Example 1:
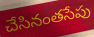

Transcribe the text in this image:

చేసినంతసేపు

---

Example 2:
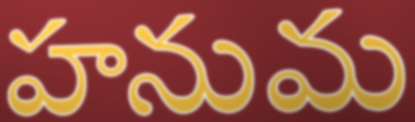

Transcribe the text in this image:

హనుమ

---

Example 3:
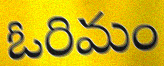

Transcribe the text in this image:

ఓరిమం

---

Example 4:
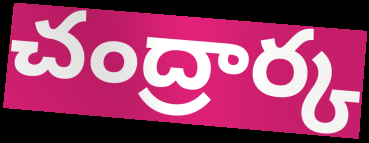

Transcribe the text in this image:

చంద్రార్క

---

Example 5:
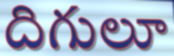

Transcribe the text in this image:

దిగులూ